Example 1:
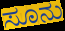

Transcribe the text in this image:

ಸೂನು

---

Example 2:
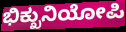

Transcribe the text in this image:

ಭಿಕ್ಖುನಿಯೋಪಿ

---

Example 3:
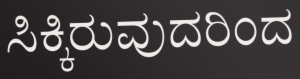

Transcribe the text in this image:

ಸಿಕ್ಕಿರುವುದರಿಂದ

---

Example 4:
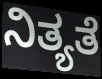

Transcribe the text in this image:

ನಿತ್ಯತೆ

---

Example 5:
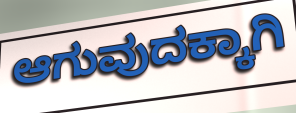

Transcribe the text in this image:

ಆಗುವುದಕ್ಕಾಗಿ